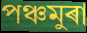
পঞ্চমুৰা